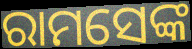
ରାମସେଙ୍କ